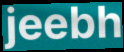
jeebh